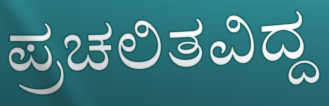
ಪ್ರಚಲಿತವಿದ್ದ